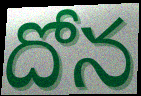
దోన